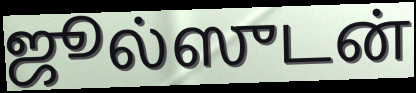
ஜூல்ஸுடன்